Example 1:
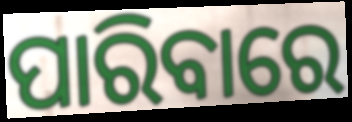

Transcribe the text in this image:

ପାରିବାରେ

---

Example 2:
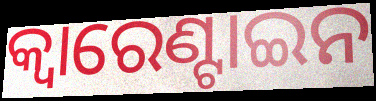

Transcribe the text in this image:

କ୍ୱାରେଣ୍ଟାଇନ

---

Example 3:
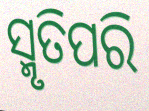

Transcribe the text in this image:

ସ୍ମୃତିପରି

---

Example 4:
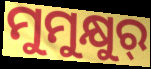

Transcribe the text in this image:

ମୁମୁକ୍ଷୁର୍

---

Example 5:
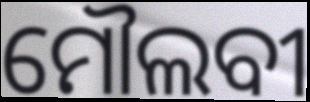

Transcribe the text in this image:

ମୌଲବୀ